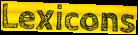
Lexicons